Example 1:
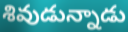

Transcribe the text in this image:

శివుడున్నాడు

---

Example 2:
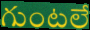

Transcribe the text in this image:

గుంటలే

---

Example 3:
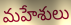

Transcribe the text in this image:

మహేశులు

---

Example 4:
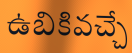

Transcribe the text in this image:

ఉబికివచ్చే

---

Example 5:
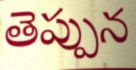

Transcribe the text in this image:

తెప్పున